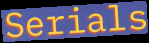
Serials